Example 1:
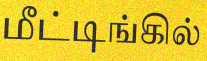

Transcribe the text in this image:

மீட்டிங்கில்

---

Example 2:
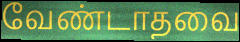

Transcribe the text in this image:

வேண்டாதவை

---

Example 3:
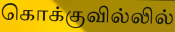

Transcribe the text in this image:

கொக்குவில்லில்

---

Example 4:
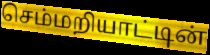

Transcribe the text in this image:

செம்மறியாட்டின்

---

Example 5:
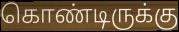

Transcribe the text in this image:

கொண்டிருக்கு